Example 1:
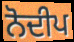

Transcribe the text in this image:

ਨੋਦੀਪ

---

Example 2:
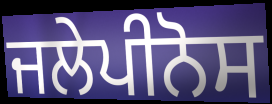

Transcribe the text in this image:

ਜਲੇਪੀਨੋਸ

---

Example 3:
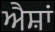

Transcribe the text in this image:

ਐਸ਼ਾਂ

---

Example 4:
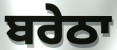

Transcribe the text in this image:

ਬਰੇਠਾ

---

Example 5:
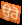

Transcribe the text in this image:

ਉਰੋ